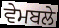
ਵੇਮਬਲੇ